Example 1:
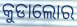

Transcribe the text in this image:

କୁଡାଲୋର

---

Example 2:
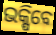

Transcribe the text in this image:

ଭକ୍ଷିବେ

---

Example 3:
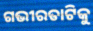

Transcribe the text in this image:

ଗଭୀରତାଟିକୁ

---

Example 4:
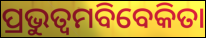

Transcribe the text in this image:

ପ୍ରଭୁତ୍ୱମବିବେକିତା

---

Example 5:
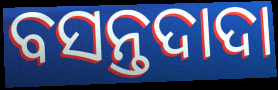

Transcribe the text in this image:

ବସନ୍ତଦାଦା